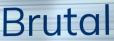
Brutal